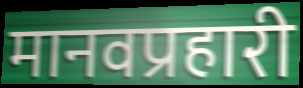
मानवप्रहारी